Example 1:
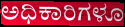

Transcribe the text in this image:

ಅಧಿಕಾರಿಗಳೂ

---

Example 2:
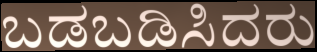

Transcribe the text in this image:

ಬಡಬಡಿಸಿದರು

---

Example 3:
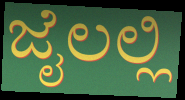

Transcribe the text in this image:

ಜೈಲಲ್ಲಿ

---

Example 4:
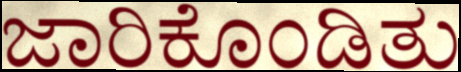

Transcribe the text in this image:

ಜಾರಿಕೊಂಡಿತು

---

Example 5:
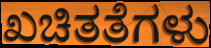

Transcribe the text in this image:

ಖಚಿತತೆಗಳು